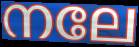
നലേ